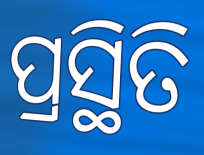
ପ୍ରସ୍ଥିତି